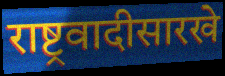
राष्ट्रवादीसारखे